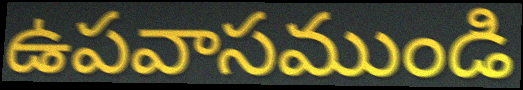
ఉపవాసముండి